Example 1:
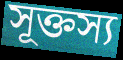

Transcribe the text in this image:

সূক্তস্য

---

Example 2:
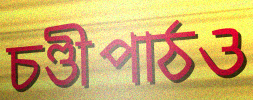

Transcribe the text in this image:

চণ্ডীপাঠও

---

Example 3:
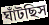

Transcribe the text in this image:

ঘাঁটছিস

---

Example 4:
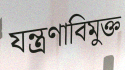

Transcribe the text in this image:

যন্ত্রণাবিমুক্ত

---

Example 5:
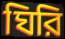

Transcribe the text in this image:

ঘিরি